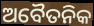
ଅବୈତନିକ